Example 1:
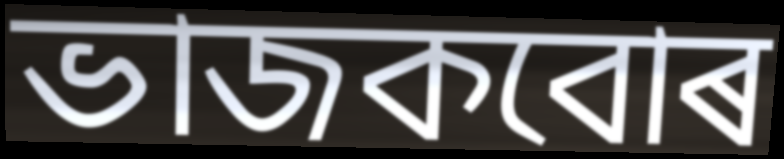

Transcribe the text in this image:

ভাজকবোৰ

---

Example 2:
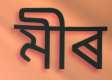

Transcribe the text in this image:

মীৰ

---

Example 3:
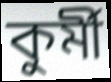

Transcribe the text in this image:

কুৰ্মী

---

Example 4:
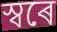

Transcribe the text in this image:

স্বৰে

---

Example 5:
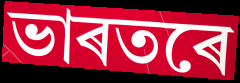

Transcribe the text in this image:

ভাৰতৰে